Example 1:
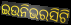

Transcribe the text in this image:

ଇଉନିଭରସିଟି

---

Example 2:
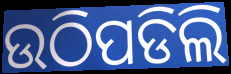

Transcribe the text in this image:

ଉଠିପଡିଲି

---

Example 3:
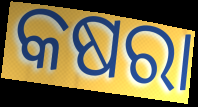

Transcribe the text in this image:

କଷରା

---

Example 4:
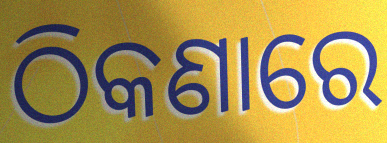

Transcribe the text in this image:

ଠିକଣାରେ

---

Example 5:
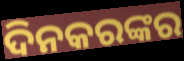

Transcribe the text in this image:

ଦିନକରଙ୍କର